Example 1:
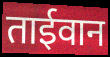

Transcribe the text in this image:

ताईवान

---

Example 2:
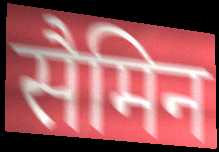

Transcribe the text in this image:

सैमिन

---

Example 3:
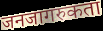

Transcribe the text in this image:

जनजागरुकता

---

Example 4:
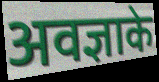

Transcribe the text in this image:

अवज्ञाके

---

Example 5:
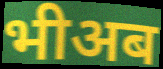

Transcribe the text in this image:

भीअब